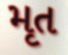
મૃત